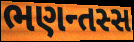
ભણન્તસ્સ